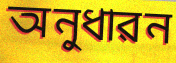
অনুধাৱন